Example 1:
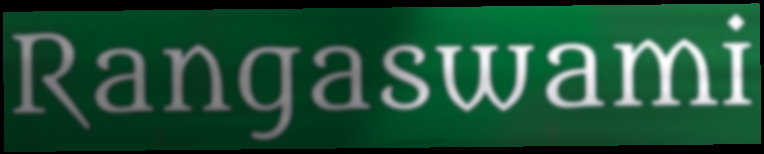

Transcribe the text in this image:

Rangaswami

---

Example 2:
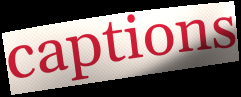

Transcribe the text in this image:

captions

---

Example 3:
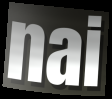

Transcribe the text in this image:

nai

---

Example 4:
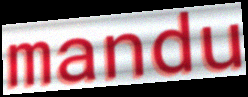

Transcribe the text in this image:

mandu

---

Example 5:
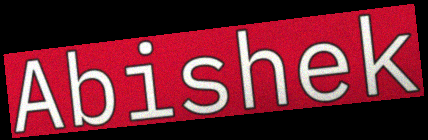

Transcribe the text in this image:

Abishek